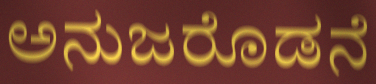
ಅನುಜರೊಡನೆ